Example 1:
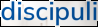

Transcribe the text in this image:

discipuli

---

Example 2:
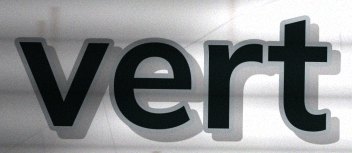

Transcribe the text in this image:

vert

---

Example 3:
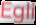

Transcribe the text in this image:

Egli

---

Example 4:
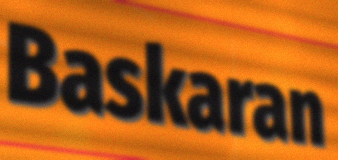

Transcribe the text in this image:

Baskaran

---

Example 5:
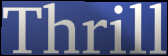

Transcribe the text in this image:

Thrill